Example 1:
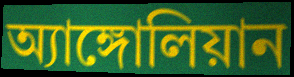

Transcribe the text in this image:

অ্যাঙ্গোলিয়ান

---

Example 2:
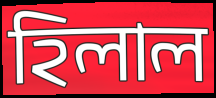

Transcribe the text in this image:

হিলাল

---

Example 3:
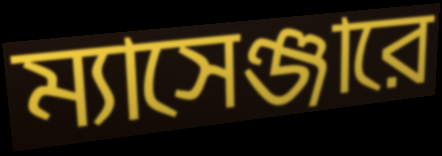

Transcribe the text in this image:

ম্যাসেঞ্জারে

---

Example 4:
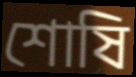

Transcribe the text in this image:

শোষি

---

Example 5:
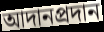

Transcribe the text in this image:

আদানপ্রদান